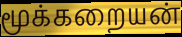
மூக்கறையன்